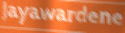
Jayawardene